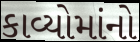
કાવ્યોમાંનો